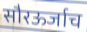
सौरऊर्जाच